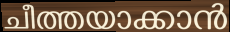
ചീത്തയാക്കാൻ